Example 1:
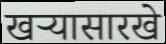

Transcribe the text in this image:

खऱ्यासारखे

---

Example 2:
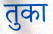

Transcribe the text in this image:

तुका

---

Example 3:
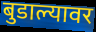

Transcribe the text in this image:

बुडाल्यावर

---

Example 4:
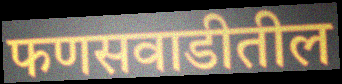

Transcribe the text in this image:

फणसवाडीतील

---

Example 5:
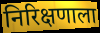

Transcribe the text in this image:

निरिक्षणाला